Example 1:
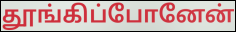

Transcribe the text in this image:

தூங்கிப்போனேன்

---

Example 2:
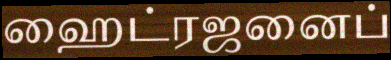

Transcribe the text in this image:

ஹைட்ரஜனைப்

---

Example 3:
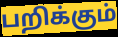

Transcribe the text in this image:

பறிக்கும்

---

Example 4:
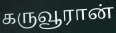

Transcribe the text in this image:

கருவூரான்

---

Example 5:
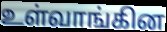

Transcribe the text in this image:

உள்வாங்கின